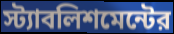
স্ট্যাবলিশমেন্টের